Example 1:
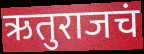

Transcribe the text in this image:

ऋतुराजचं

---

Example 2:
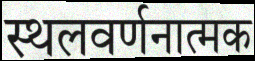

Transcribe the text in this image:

स्थलवर्णनात्मक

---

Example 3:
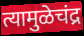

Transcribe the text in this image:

त्यामुळेचंद्र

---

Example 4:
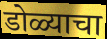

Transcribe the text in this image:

डोळ्याचा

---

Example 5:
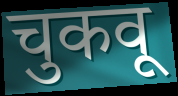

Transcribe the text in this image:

चुकवू